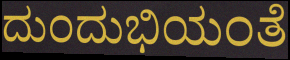
ದುಂದುಭಿಯಂತೆ